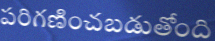
పరిగణించబడుతోంది